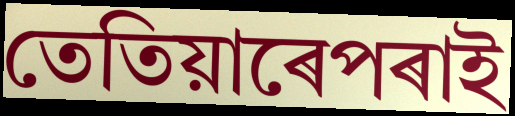
তেতিয়াৰেপৰাই